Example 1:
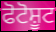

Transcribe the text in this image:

ਫੋਟੋਸ਼ੂਟ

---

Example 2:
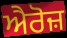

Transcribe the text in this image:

ਐਰੋਜ਼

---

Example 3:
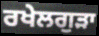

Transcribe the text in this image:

ਰਖੇਲਗੁੜਾ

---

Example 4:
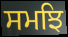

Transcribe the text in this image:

ਸਮਝਿ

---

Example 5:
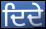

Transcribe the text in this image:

ਦਿਦੇ